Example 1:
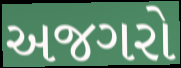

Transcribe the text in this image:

અજગરો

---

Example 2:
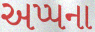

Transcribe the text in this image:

અપ્પના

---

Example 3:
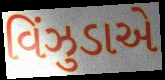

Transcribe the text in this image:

વિંઝુડાએ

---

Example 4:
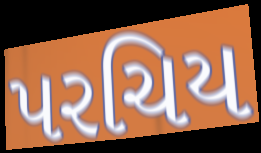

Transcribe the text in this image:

પરચિય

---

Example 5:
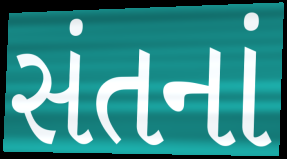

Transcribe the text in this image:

સંતનાં